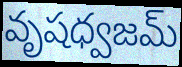
వృషధ్వజమ్